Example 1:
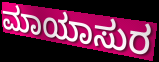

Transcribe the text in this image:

ಮಾಯಾಸುರ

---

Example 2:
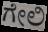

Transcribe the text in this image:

ಗೇಲಿ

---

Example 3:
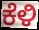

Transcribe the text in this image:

ಕೆಳಿ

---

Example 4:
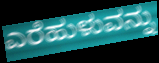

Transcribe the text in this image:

ಎರೆಹುಳುವನ್ನು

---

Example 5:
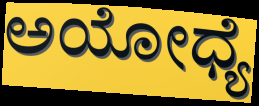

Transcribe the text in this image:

ಅಯೋಧ್ಯೆ